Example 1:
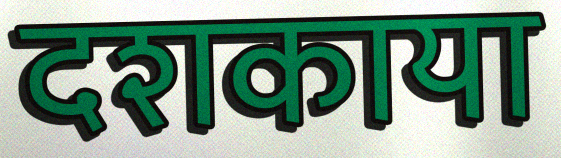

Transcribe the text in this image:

दशकाया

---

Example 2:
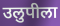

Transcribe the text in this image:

उलुपीला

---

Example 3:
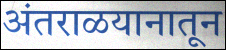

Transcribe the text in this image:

अंतराळयानातून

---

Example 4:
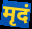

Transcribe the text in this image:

मृदं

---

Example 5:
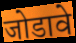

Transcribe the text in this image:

जोडावे